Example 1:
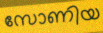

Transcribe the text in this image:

സോണിയ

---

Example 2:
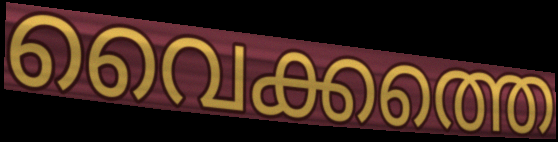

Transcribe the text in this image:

വൈക്കത്തെ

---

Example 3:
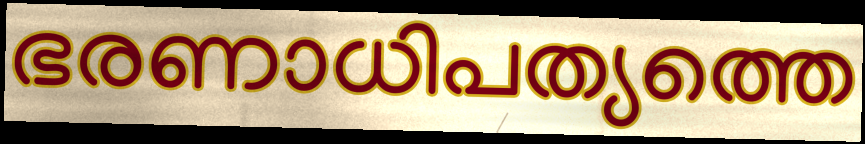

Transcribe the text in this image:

ഭരണാധിപത്യത്തെ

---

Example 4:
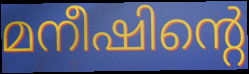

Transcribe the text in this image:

മനീഷിന്റെ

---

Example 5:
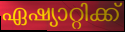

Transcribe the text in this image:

ഏഷ്യാറ്റിക്ക്